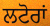
ਲਟੋਰਾਂ